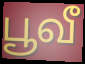
பூவீ